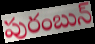
పురంబున్